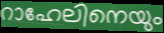
റാഹേലിനെയും